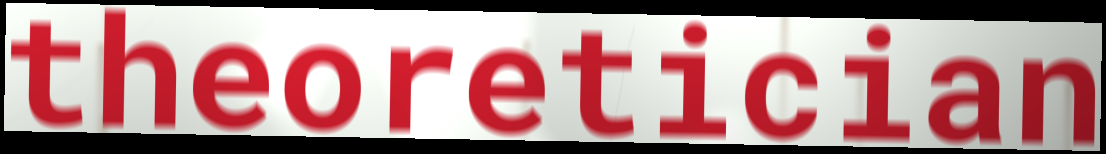
theoretician